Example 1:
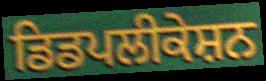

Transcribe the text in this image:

ਡਿਡਪਲੀਕੇਸ਼ਨ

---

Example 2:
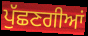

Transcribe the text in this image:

ਪੁੱਛਣਗੀਆਂ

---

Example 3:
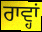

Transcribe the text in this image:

ਰਾਵ੍ਹਾਂ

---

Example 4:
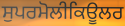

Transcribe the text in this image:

ਸੁਪਰਮੋਲੀਕਿਊਲਰ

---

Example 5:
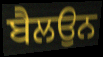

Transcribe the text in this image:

ਬੈਲਉਨ